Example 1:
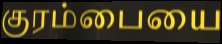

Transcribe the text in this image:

குரம்பையை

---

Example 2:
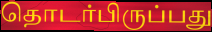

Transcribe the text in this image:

தொடர்பிருப்பது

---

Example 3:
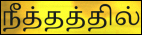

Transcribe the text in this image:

நீத்தத்தில்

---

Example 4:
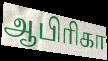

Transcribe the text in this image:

ஆபிரிகா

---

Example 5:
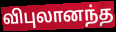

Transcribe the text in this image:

விபுலானந்த